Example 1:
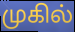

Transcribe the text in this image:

முகில்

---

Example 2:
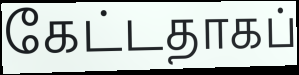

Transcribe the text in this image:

கேட்டதாகப்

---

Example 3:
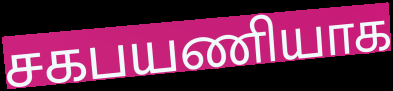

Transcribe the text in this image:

சகபயணியாக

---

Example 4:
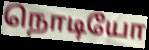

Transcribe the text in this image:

நொடியோ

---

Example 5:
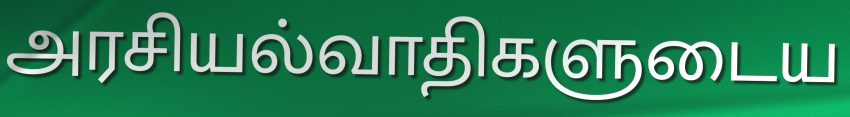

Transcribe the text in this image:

அரசியல்வாதிகளுடைய